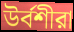
উর্বশীরা